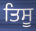
ਤਿਸੂ